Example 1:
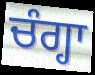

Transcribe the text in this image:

ਚੰਗ੍ਹਾ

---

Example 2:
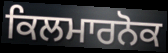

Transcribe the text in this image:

ਕਿਲਮਾਰਨੋਕ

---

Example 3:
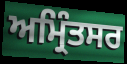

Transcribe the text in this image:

ਅਮ੍ਰਿੰਤਸਰ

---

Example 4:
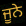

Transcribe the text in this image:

ਜੂਨੇ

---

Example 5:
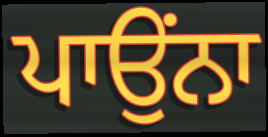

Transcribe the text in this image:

ਪਾਉਂਨਾ